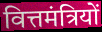
वित्तमंत्रियों